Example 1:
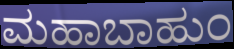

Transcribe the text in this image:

ಮಹಾಬಾಹುಂ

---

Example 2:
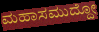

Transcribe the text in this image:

ಮಹಾಸಮುದ್ದೋ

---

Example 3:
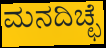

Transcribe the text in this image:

ಮನದಿಚ್ಛೆ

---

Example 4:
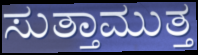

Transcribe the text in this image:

ಸುತ್ತಾಮುತ್ತ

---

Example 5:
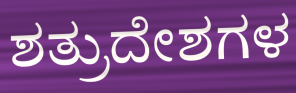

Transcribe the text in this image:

ಶತ್ರುದೇಶಗಳ